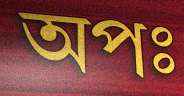
অপঃ